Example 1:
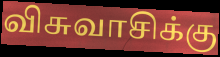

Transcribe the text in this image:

விசுவாசிக்கு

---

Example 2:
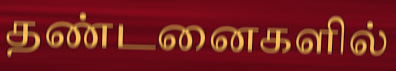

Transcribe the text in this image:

தண்டனைகளில்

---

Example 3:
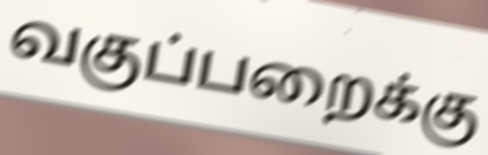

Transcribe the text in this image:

வகுப்பறைக்கு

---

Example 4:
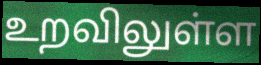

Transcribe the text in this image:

உறவிலுள்ள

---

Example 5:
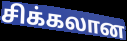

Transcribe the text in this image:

சிக்கலான